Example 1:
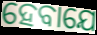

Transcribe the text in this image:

ହେବାଯେ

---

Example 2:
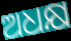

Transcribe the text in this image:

ଅଧକ୍ଷ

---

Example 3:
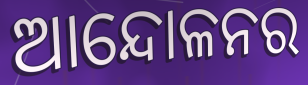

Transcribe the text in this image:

ଆନ୍ଦୋଳନର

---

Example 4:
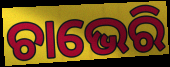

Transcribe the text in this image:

ଚାଭେରି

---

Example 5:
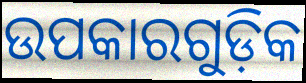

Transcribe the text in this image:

ଉପକାରଗୁଡ଼ିକ